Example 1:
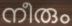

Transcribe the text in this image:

നീരും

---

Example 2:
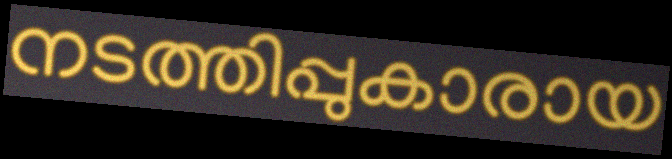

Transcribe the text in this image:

നടത്തിപ്പുകാരായ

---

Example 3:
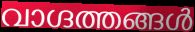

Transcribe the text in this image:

വാഗ്ദത്തങ്ങൾ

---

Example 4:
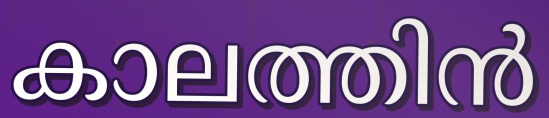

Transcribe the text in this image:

കാലത്തിൻ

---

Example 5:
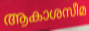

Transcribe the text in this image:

ആകാശസീമ